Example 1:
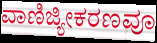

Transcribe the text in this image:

ವಾಣಿಜ್ಯೀಕರಣವೂ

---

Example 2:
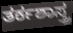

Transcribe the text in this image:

ತರ್ಕಶಾಸ್ತ್ರ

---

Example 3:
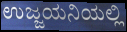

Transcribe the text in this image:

ಉಜ್ಜಯನಿಯಲ್ಲಿ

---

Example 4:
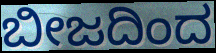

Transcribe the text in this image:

ಬೀಜದಿಂದ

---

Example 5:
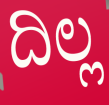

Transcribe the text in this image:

ದಿಲ್ಲ